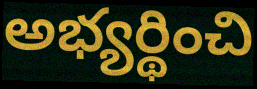
అభ్యర్థించి